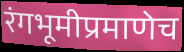
रंगभूमीप्रमाणेच